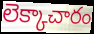
లెక్కాచారం